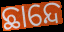
ଛାନ୍ଦେ